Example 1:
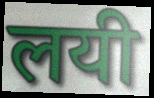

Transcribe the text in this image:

लयी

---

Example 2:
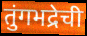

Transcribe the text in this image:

तुंगभद्रेची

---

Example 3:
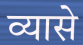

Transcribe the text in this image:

व्यासे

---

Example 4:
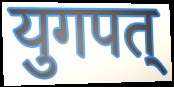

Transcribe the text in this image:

युगपत्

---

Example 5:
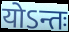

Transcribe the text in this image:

योऽन्तः